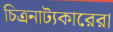
চিত্রনাট্যকারেরা